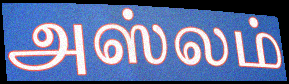
அஸ்லம்